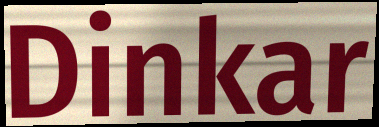
Dinkar